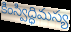
కింస్విద్ధిమస్య